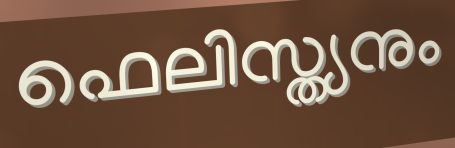
ഫെലിസ്ത്യനും